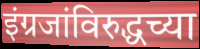
इंग्रजांविरुद्धच्या